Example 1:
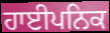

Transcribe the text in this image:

ਹਾਈਪਨਿਕ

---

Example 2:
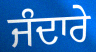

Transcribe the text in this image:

ਜੰਦਾਰੇ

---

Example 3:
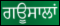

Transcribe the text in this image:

ਗਊਸਾਲਾਂ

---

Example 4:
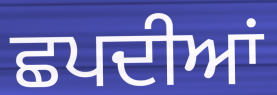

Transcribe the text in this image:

ਛਪਦੀਆਂ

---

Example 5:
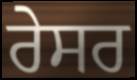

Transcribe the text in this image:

ਰੇਸਰ